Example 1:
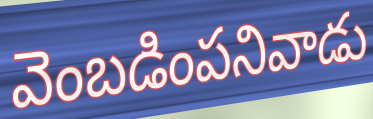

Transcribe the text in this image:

వెంబడింపనివాడు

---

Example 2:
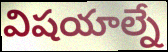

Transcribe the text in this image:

విషయాల్నే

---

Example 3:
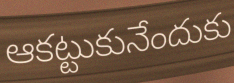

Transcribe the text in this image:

ఆకట్టుకునేందుకు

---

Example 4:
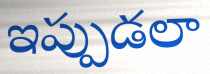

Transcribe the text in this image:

ఇప్పుడలా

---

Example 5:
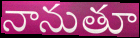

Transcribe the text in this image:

నానుతూ